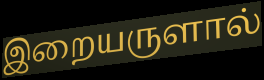
இறையருளால்